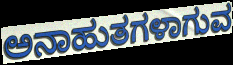
ಅನಾಹುತಗಳಾಗುವ